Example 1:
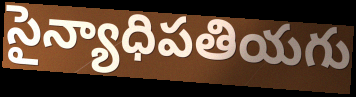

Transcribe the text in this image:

సైన్యాధిపతియగు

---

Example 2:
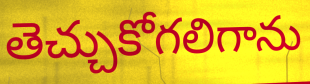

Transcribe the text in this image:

తెచ్చుకోగలిగాను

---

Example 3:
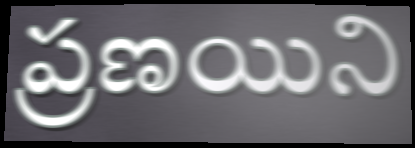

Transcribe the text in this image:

ప్రణయిని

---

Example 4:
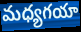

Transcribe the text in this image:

మధ్యగయా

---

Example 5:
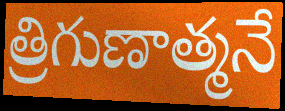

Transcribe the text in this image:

త్రిగుణాత్మనే